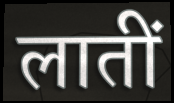
लातीं